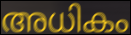
അധികം